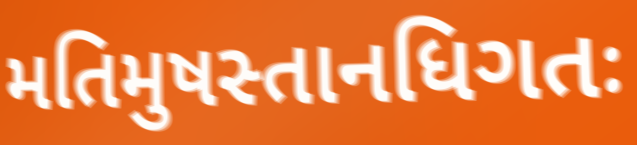
મતિમુષસ્તાનધિગતઃ